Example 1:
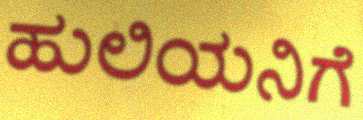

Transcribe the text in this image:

ಹುಲಿಯನಿಗೆ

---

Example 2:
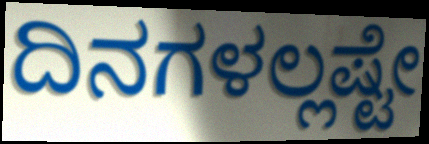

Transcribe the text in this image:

ದಿನಗಳಲ್ಲಷ್ಟೇ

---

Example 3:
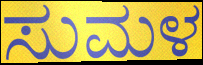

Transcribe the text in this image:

ಸುಮಳ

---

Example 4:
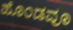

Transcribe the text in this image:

ಹೊಂಡವೂ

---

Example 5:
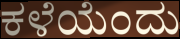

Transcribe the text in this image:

ಕಳೆಯೆಂದು